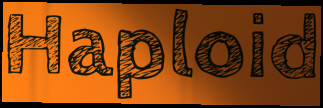
Haploid